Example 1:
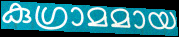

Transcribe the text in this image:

കുഗ്രാമമായ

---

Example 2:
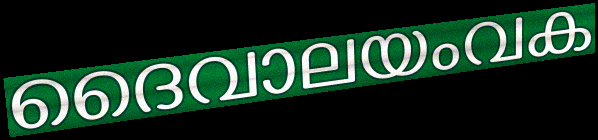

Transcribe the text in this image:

ദൈവാലയംവക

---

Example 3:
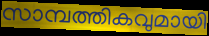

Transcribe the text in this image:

സാമ്പത്തികവുമായി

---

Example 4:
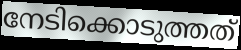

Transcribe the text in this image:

നേടിക്കൊടുത്തത്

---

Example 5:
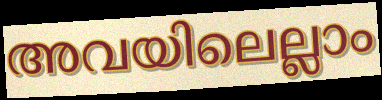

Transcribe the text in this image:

അവയിലെല്ലാം